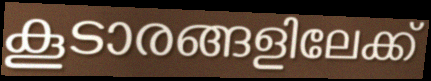
കൂടാരങ്ങളിലേക്ക്